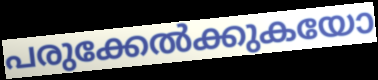
പരുക്കേൽക്കുകയോ